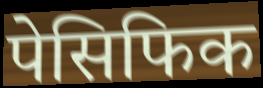
पेसिफिक